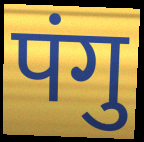
पंगु